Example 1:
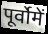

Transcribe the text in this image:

पूर्वोमें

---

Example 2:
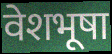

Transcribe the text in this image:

वेशभूषा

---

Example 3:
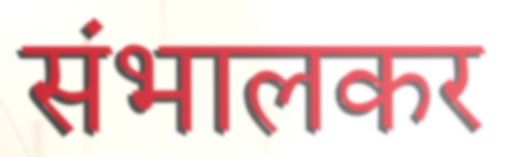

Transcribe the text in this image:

संभालकर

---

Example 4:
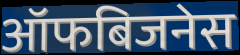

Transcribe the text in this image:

ऑफबिजनेस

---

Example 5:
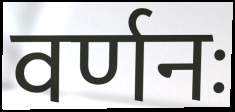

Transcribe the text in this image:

वर्णनः